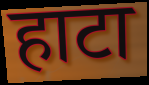
हाटा